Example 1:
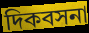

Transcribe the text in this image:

দিকবসনা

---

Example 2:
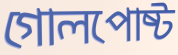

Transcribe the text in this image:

গোলপোষ্ট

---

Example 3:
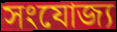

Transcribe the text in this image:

সংযোজ্য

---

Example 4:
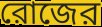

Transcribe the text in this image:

রোজের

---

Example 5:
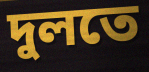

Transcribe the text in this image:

দুলতে